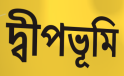
দ্বীপভূমি